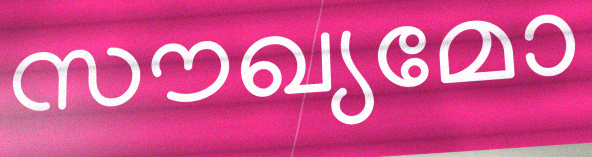
സൗഖ്യമോ